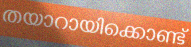
തയാറായിക്കൊണ്ട്